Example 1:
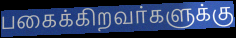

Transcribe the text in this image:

பகைக்கிறவர்களுக்கு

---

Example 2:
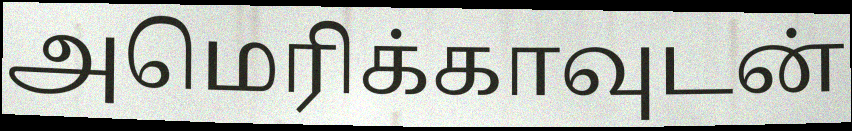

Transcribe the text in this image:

அமெரிக்காவுடன்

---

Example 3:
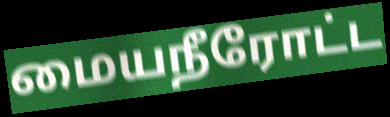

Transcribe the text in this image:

மையநீரோட்ட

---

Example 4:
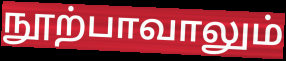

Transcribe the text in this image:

நூற்பாவாலும்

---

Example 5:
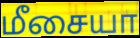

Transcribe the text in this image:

மீசையா